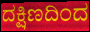
ದಕ್ಷಿಣದಿಂದ